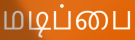
மடிப்பை